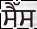
ਸੈੱਸ